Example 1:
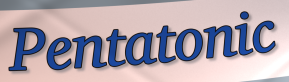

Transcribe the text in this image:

Pentatonic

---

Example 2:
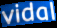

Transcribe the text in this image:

vidal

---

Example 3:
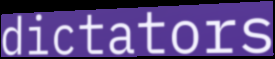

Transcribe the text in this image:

dictators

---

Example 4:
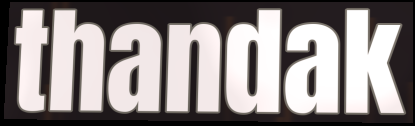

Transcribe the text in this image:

thandak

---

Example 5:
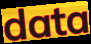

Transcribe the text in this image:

data